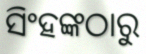
ସିଂହଙ୍କଠାରୁ